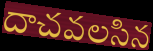
దాచవలసిన